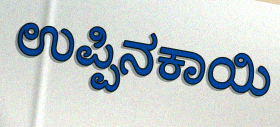
ಉಪ್ಪಿನಕಾಯಿ